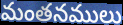
మంతనములు